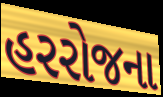
હરરોજના